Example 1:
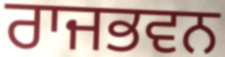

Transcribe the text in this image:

ਰਾਜਭਵਨ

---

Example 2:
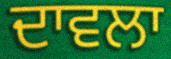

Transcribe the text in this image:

ਦਾਵਲਾ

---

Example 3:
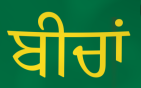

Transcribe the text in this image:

ਬੀਚਾਂ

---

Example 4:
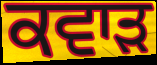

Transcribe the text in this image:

ਕਵਾੜ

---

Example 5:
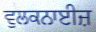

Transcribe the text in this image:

ਵੁਲਕਨਾਈਜ਼